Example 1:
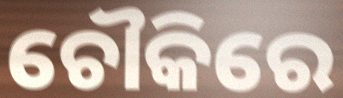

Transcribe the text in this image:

ଚୌକିରେ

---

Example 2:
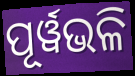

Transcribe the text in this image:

ପୂର୍ୱଭଳି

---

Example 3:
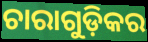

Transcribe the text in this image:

ଚାରାଗୁଡ଼ିକର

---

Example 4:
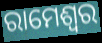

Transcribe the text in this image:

ରାମେଶ୍ୱର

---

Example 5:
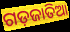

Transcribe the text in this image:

ଗଡ଼ଜାତିଆ